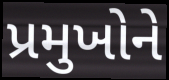
પ્રમુખોને